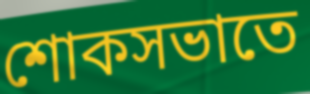
শোকসভাতে